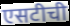
एसटीची